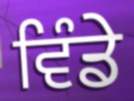
ਵਿੰਡੇ